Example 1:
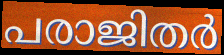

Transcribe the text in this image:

പരാജിതർ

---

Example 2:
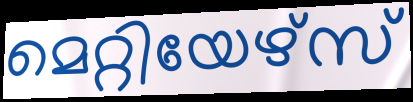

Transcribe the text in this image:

മെറ്റിയേഴ്സ്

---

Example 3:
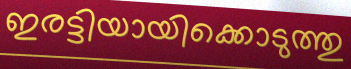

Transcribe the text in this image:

ഇരട്ടിയായിക്കൊടുത്തു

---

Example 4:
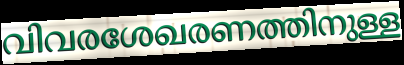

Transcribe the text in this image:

വിവരശേഖരണത്തിനുള്ള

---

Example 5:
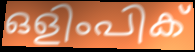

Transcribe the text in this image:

ഒളിംപിക്